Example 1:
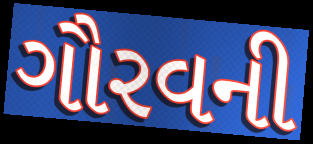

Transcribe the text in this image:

ગૌરવની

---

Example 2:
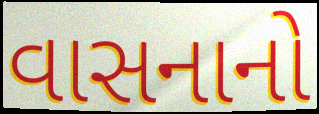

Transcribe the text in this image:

વાસનાનો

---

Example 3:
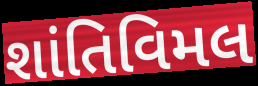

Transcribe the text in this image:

શાંતિવિમલ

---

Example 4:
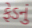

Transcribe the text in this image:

ફેડનું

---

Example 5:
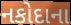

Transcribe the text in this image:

નકોદાના